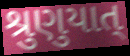
શ્રુણુયાત્